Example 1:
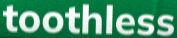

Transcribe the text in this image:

toothless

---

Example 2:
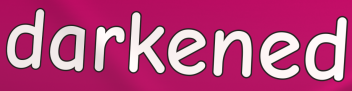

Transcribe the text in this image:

darkened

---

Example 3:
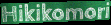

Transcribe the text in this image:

Hikikomori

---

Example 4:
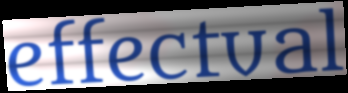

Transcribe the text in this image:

effectual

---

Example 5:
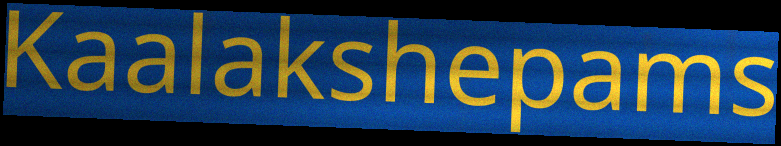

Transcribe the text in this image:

Kaalakshepams